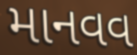
માનવવ